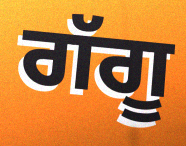
ਗੱਗੂ